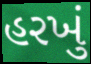
હરખું